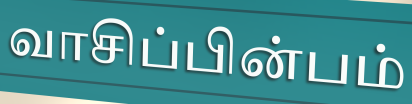
வாசிப்பின்பம்